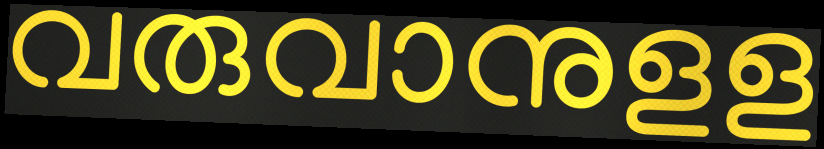
വരുവാനുളള